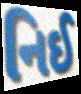
નિઈ